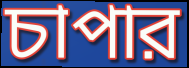
চাপার